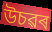
উচৱৰ